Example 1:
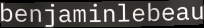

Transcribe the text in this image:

benjaminlebeau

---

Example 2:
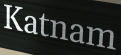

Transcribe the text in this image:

Katnam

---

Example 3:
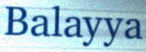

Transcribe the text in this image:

Balayya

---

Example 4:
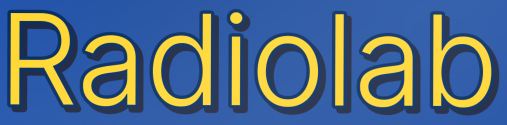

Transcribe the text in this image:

Radiolab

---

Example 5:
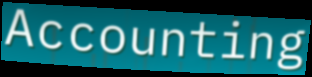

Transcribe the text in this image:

Accounting